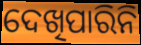
ଦେଖିପାରିନି